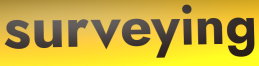
surveying